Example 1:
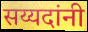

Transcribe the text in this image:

सय्यदांनी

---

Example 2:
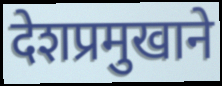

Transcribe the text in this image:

देशप्रमुखाने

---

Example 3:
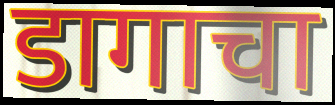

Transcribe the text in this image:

डागाचा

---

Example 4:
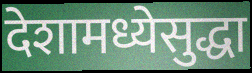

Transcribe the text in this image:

देशामध्येसुद्धा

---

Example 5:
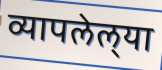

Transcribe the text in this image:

व्यापलेल्या